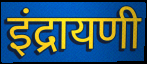
इंद्रायणी